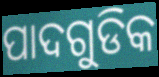
ପାଦଗୁଡିକ